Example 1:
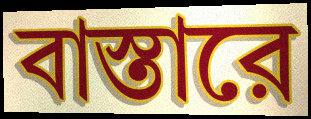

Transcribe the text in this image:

বাস্তারে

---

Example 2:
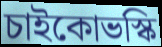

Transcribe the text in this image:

চাইকোভস্কি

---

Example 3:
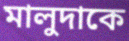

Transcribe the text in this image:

মালুদাকে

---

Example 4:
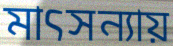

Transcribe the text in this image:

মাৎসন্যায়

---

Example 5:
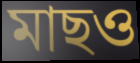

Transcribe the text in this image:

মাছও